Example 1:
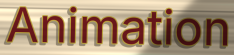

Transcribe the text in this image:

Animation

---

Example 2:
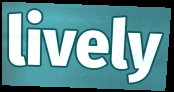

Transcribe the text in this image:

lively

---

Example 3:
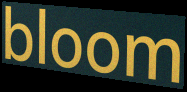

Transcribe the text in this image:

bloom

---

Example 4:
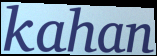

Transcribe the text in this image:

kahan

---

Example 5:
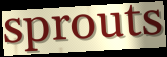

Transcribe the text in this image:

sprouts